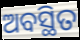
ଅବସ୍ଥିତ